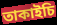
তাকাইচি